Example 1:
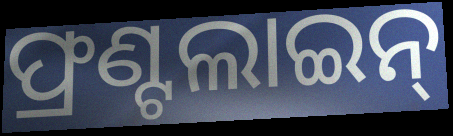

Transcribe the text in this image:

ଫ୍ରଣ୍ଟଲାଇନ୍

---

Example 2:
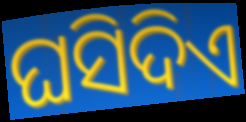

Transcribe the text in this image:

ଘସିଦିଏ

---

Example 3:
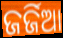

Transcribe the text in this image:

ଜର୍ଜିଆ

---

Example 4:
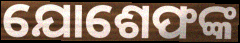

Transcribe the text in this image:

ଯୋଶେଫଙ୍କ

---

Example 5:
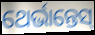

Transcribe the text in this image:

ଥେର୍ଭାନ୍ତେସ୍